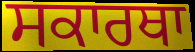
ਸਕਾਰਥਾ